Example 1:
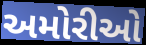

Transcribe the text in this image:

અમોરીઓ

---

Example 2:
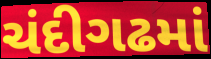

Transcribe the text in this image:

ચંદીગઢમાં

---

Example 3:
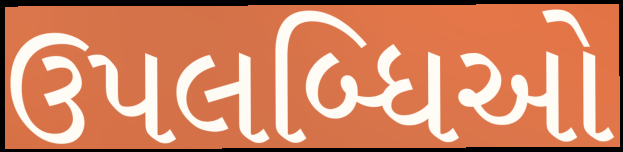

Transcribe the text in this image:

ઉપલબ્ધિઓ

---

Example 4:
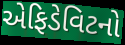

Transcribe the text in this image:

એફિડેવિટનો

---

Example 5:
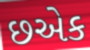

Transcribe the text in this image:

છએક